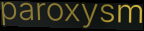
paroxysm